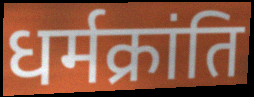
धर्मक्रांति